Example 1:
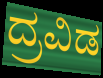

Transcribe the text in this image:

ದ್ರವಿಡ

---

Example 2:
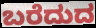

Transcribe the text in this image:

ಬರೆದುದ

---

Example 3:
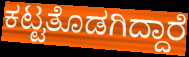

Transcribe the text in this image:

ಕಟ್ಟತೊಡಗಿದ್ದಾರೆ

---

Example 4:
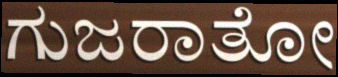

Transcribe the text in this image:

ಗುಜರಾತೋ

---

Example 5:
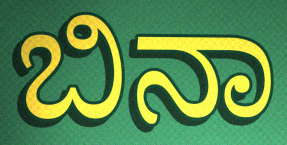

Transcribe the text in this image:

ಬಿನಾ